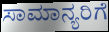
ಸಾಮಾನ್ಯರಿಗೆ